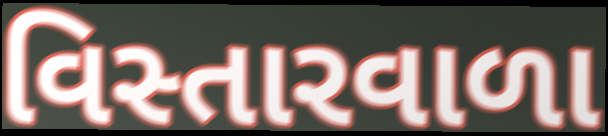
વિસ્તારવાળા